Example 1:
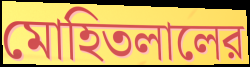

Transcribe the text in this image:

মোহিতলালের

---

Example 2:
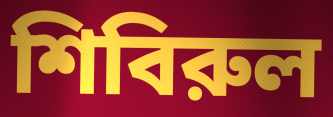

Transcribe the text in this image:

শিবিরুল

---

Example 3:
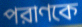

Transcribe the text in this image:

পরাণকে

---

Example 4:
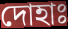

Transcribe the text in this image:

দোহাঃ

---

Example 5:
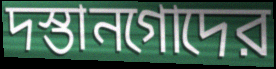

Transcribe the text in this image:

দস্তানগোদের